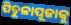
ପିତୁଳାପୂଜାକୁ